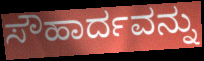
ಸೌಹಾರ್ದವನ್ನು